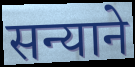
सन्याने